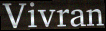
Vivran